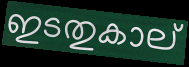
ഇടതുകാല്